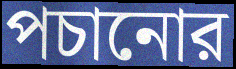
পচানোর